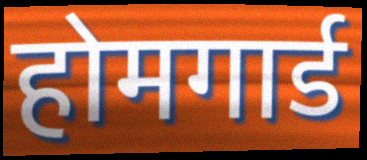
होमगार्ड